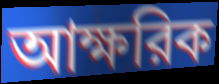
আক্ষরিক